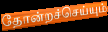
தோன்றச்செய்யும்